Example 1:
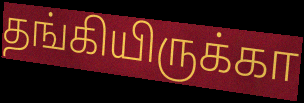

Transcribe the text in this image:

தங்கியிருக்கா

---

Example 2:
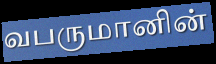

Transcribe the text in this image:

வபருமானின்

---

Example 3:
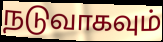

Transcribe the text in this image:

நடுவாகவும்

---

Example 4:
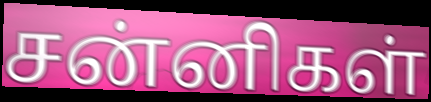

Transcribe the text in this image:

சன்னிகள்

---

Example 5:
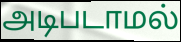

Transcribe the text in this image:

அடிபடாமல்